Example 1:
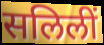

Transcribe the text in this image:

सलिलीं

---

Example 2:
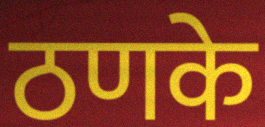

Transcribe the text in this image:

ठणके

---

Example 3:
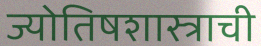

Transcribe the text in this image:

ज्योतिषशास्त्राची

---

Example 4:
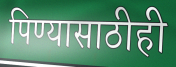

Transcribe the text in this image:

पिण्यासाठीही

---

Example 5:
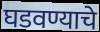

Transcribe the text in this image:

घडवण्याचे